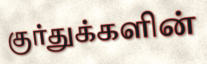
குர்துக்களின்